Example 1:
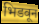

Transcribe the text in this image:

भिडवून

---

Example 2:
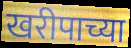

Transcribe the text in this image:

खरीपाच्या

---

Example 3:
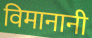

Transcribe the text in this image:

विमानानी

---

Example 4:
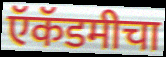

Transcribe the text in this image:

ऍकॅडमीचा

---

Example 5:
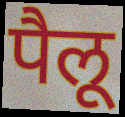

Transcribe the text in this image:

पैलू